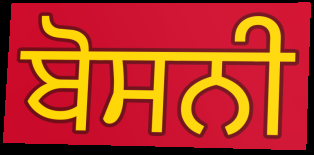
ਬੋਸਨੀ